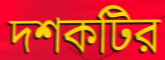
দশকটির